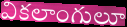
వికలాంగులూ